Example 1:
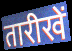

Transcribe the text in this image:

तारीखें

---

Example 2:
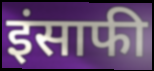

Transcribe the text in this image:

इंसाफी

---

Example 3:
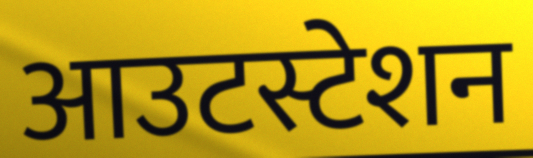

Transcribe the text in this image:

आउटस्टेशन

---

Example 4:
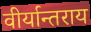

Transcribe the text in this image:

वीर्यान्तराय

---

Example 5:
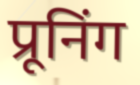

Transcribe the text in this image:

प्रूनिंग